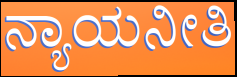
ನ್ಯಾಯನೀತಿ